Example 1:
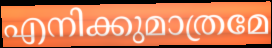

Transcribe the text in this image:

എനിക്കുമാത്രമേ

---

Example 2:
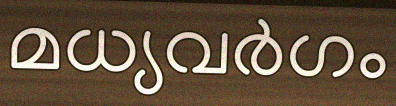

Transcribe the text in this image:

മധ്യവർഗം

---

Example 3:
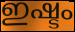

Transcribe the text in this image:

ഇഷ്ടം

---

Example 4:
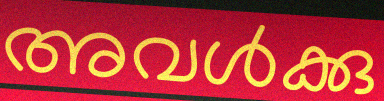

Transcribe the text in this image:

അവൾക്കു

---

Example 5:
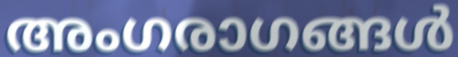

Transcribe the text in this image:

അംഗരാഗങ്ങൾ